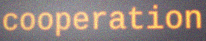
cooperation